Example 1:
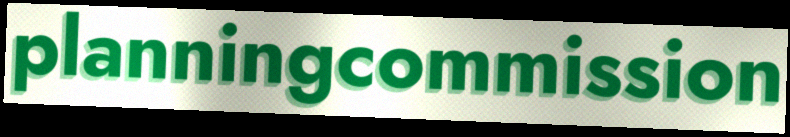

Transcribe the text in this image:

planningcommission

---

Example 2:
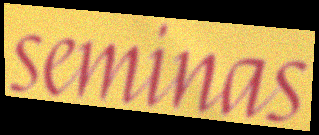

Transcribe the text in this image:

seminas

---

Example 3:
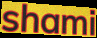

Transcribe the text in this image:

shami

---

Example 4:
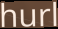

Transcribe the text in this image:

hurl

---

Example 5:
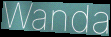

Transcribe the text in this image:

Wanda